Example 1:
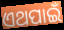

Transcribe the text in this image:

ଏଥପାଇଁ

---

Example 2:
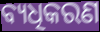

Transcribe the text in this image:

ବ୍ୟଧିକରଣ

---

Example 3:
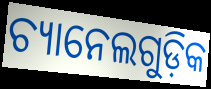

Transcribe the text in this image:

ଚ୍ୟାନେଲଗୁଡ଼ିକ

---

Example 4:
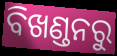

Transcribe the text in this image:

ବିଖଣ୍ଡନରୁ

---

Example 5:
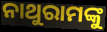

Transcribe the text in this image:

ନାଥୁରାମଙ୍କୁ